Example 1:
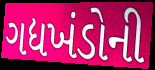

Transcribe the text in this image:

ગદ્યખંડોની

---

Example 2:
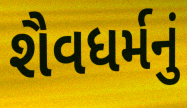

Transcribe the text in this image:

શૈવધર્મનું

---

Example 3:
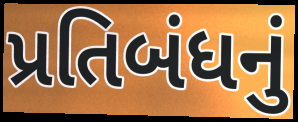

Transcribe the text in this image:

પ્રતિબંધનું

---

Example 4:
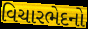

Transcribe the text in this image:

વિચારભેદનો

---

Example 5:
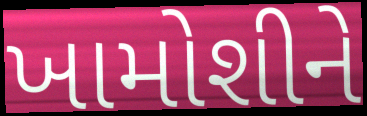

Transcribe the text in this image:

ખામોશીને